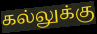
கல்லுக்கு